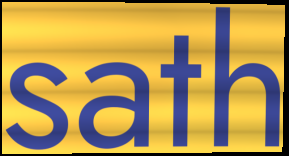
sath